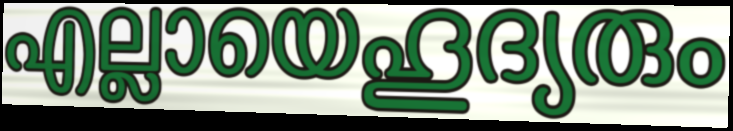
എല്ലായെഹൂദ്യരും